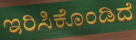
ಇರಿಸಿಕೊಂಡಿದೆ